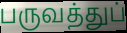
பருவத்துப்